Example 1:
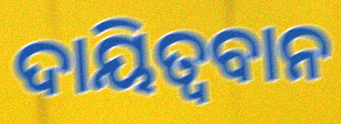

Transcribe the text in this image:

ଦାୟିତ୍ଵବାନ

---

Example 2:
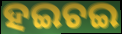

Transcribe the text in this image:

ହଇଚଇ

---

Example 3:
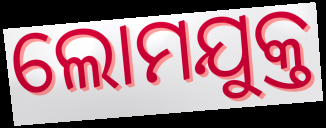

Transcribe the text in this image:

ଲୋମଯୁକ୍ତ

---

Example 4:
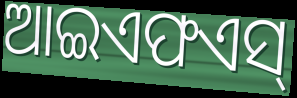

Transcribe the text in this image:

ଆଇଏଫଏସ୍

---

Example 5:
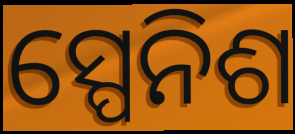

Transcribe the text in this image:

ସ୍ପେନିଶ